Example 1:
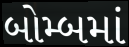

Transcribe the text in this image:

બોમ્બમાં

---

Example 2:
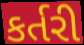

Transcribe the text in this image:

કર્તરી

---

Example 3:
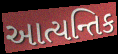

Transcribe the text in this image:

આત્યન્તિક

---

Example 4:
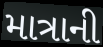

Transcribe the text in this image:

માત્રાની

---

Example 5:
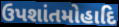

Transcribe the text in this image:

ઉપશાંતમોહાદિ